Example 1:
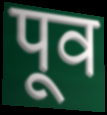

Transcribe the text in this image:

पूव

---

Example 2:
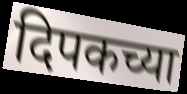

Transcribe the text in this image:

दिपकच्या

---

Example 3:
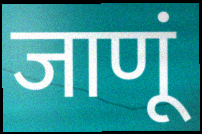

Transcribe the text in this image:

जाणूं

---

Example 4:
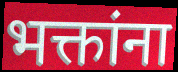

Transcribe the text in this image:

भक्तांना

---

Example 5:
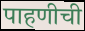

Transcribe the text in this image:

पाहणीची